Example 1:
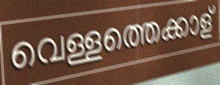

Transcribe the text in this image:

വെള്ളത്തെക്കാള്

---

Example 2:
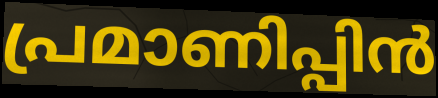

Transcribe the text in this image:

പ്രമാണിപ്പിൻ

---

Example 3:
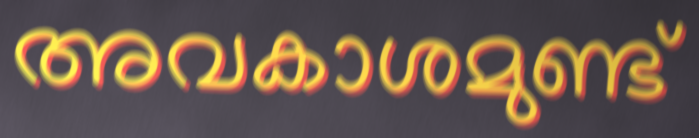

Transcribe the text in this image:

അവകാശമുണ്ട്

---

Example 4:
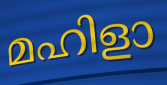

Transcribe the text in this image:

മഹിളാ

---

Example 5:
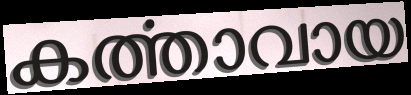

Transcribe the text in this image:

കൎത്താവായ